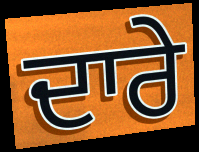
ਦਾਰੇ